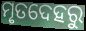
ମୃତଦେହରୁ